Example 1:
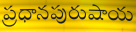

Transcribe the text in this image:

ప్రధానపురుషాయ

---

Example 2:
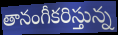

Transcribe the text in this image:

తానంగీకరిస్తున్న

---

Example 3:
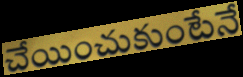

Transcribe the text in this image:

చేయించుకుంటేనే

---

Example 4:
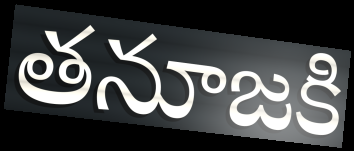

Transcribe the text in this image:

తనూజకి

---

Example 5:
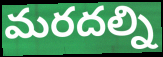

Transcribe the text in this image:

మరదల్ని